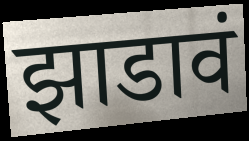
झाडावं